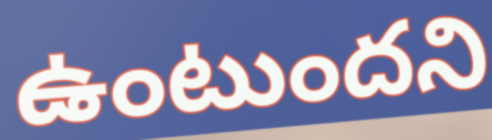
ఉంటుందని